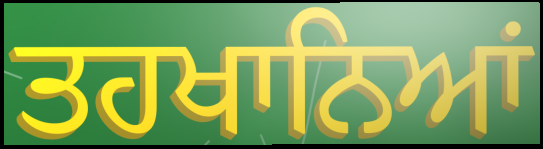
ਤਹਖਾਨਿਆਂ